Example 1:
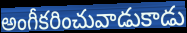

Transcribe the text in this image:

అంగీకరించువాడుకాడు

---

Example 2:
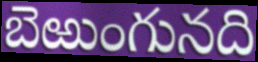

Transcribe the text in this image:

బెఱుంగునది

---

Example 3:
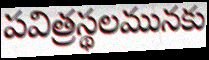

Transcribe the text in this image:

పవిత్రస్థలమునకు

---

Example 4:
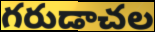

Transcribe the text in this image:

గరుడాచల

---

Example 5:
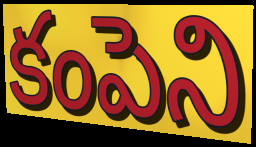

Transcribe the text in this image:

కంపెని